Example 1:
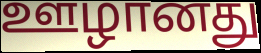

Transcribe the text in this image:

ஊழானது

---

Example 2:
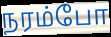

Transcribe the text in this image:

நரம்போ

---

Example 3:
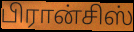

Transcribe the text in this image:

பிரான்சிஸ்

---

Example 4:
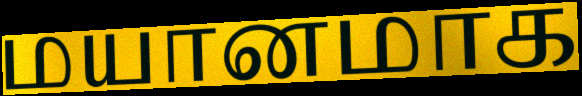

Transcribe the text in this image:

மயானமாக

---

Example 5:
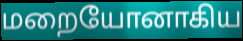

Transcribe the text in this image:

மறையோனாகிய